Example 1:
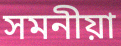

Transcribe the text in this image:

সমনীয়া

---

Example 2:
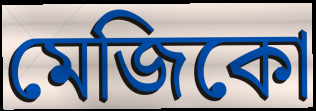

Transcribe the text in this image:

মেজিকো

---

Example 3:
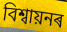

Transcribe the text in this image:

বিশ্ৱায়নৰ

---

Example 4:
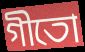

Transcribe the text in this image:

গীতো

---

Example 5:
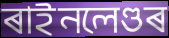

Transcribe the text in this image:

ৰাইনলেণ্ডৰ